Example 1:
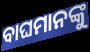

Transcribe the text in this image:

ବାଘମାନଙ୍କୁ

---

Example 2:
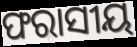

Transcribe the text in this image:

ଫରାସୀୟ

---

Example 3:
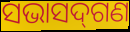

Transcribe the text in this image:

ସଭାସଦ୍‌ଗଣ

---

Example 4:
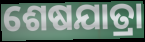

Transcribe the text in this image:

ଶେଷଯାତ୍ରା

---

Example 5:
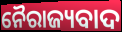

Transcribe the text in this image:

ନୈରାଜ୍ୟବାଦ